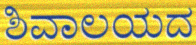
ಶಿವಾಲಯದ